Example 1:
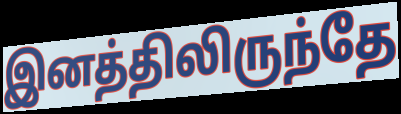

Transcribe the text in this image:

இனத்திலிருந்தே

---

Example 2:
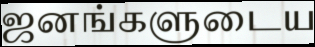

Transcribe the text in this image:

ஜனங்களுடைய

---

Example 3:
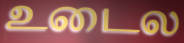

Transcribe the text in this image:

உடைல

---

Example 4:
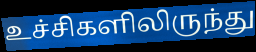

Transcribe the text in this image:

உச்சிகளிலிருந்து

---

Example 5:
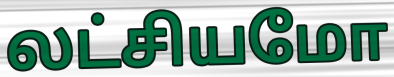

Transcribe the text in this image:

லட்சியமோ